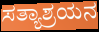
ಸತ್ಯಾಶ್ರಯನ